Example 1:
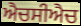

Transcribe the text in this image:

ਐਚਸੀਐਚ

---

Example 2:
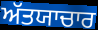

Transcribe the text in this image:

ਅੱਤਯਾਚਾਰ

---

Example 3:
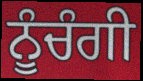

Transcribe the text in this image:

ਨੂੰਚੰਗੀ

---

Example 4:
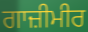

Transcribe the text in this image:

ਗਾਜ਼ੀਮੀਰ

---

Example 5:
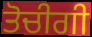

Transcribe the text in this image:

ਤੋਚੀਗੀ